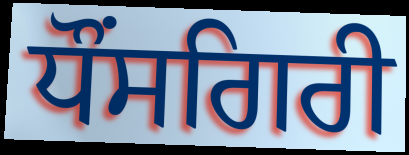
ਧੌਂਸਗਿਰੀ